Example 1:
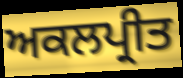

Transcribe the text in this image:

ਅਕਲਪ੍ਰੀਤ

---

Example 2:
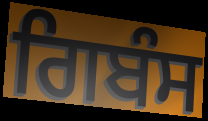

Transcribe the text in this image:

ਗਿਬੰਸ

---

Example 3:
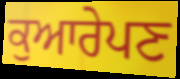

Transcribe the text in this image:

ਕੁਆਰੇਪਣ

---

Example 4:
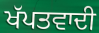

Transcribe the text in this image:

ਖੱਪਤਵਾਦੀ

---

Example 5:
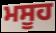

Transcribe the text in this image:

ਮਸੂਹ